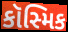
કૉસ્મિક